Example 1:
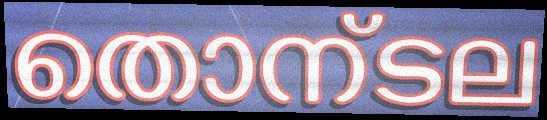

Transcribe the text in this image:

തൊന്ടല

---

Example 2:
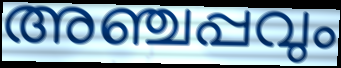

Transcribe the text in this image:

അഞ്ചപ്പവും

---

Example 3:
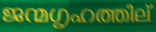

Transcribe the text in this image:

ജന്മഗൃഹത്തില്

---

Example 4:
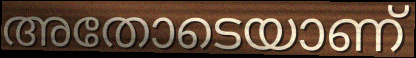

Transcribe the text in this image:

അതോടെയാണ്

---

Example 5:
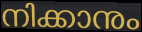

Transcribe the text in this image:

നിക്കാനും